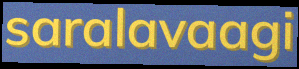
saralavaagi